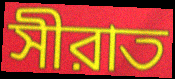
সীরাত